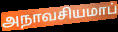
அநாவசியமாப்